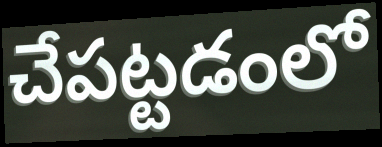
చేపట్టడంలో